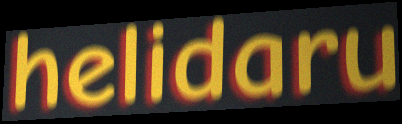
helidaru